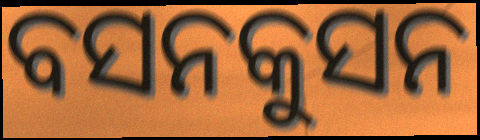
ବସନକୁସନ